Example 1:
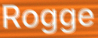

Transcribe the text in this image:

Rogge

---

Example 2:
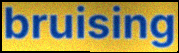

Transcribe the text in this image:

bruising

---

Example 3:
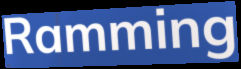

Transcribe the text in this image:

Ramming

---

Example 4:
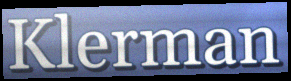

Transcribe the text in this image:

Klerman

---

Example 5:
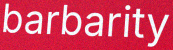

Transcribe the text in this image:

barbarity